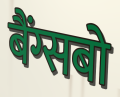
बैंग्सबो